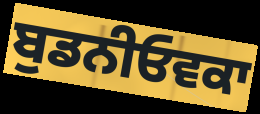
ਬੁਡਨੀਓਵਕਾ